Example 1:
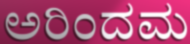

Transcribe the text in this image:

ಅರಿಂದಮ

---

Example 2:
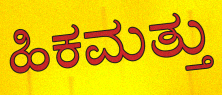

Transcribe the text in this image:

ಹಿಕಮತ್ತು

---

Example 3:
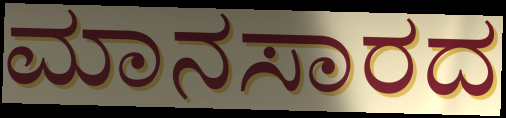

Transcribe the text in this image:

ಮಾನಸಾರದ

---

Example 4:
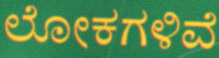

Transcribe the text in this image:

ಲೋಕಗಳಿವೆ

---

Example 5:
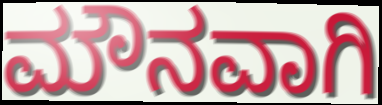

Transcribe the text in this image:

ಮೌನವಾಗಿ